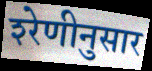
श्रेणीनुसार